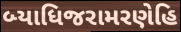
બ્યાધિજરામરણેહિ